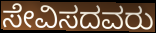
ಸೇವಿಸದವರು